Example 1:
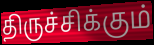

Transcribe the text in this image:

திருச்சிக்கும்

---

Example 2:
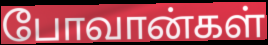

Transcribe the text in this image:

போவான்கள்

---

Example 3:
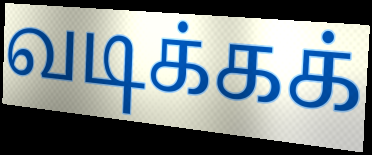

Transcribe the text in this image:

வடிக்கக்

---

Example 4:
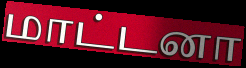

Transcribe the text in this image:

மாட்டனா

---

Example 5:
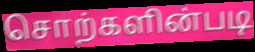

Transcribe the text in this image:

சொற்களின்படி